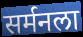
सर्मनला